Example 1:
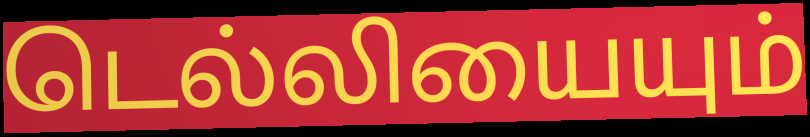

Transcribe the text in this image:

டெல்லியையும்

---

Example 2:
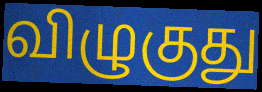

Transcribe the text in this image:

விழுகுது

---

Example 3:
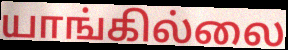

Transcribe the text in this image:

யாங்கில்லை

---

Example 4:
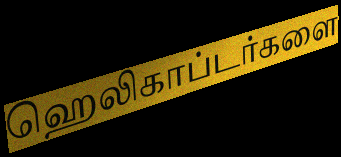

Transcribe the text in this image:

ஹெலிகாப்டர்களை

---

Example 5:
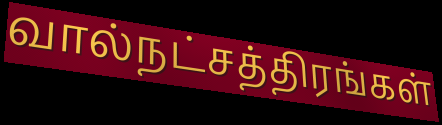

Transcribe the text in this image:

வால்நட்சத்திரங்கள்